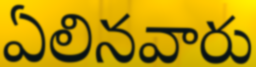
ఏలినవారు